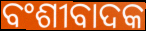
ବଂଶୀବାଦକ